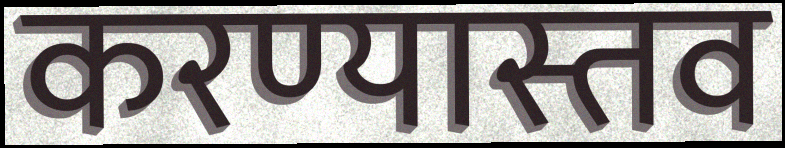
करण्यास्तव